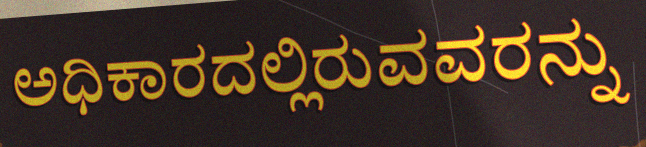
ಅಧಿಕಾರದಲ್ಲಿರುವವರನ್ನು